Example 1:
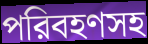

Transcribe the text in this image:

পরিবহণসহ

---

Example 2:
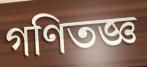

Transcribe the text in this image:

গণিতজ্ঞ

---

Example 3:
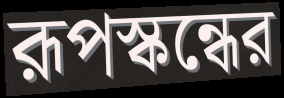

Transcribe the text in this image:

রূপস্কন্ধের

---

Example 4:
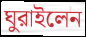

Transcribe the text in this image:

ঘুরাইলেন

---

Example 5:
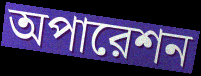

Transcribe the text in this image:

অপারেশন